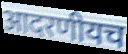
आदरणीयच